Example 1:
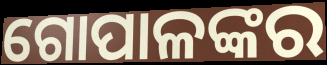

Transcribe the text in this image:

ଗୋପାଳଙ୍କର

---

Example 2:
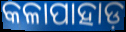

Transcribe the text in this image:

କଳାପାହାଡ଼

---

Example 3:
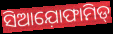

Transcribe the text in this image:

ସିଆଯ଼ୋଫାମିଡ୍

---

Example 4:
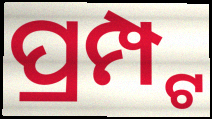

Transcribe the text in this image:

ପ୍ରମ୍ପ୍ଟ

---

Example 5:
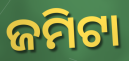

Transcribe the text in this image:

ଜମିଟା